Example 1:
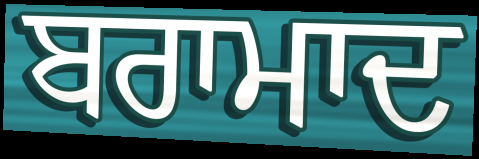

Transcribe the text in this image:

ਬਰਾਮਾਦ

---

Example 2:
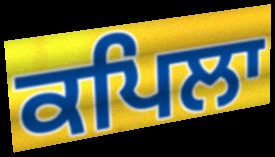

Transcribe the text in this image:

ਕਪਿਲਾ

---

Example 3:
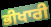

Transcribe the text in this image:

ਭੀਖਾਰੀ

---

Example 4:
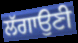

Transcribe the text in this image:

ਲੱਗਾਉਣੀ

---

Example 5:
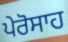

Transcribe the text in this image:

ਪੇਰੋਸਾਹ